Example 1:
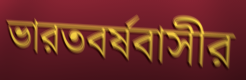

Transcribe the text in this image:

ভারতবর্ষবাসীর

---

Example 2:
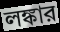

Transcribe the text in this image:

লঙ্কার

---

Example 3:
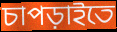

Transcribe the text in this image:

চাপড়াইতে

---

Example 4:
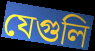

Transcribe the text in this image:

যেগুলি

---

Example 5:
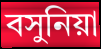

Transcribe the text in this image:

বসুনিয়া